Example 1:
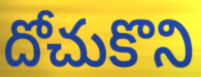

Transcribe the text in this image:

దోచుకొని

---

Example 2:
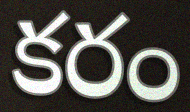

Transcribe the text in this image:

కరం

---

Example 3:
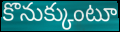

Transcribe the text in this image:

కొనుక్కుంటూ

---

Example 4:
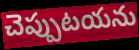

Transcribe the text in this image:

చెప్పుటయను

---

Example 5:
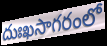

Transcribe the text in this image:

దుఃఖసాగరంలో